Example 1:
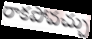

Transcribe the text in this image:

రాకపోవచ్చు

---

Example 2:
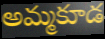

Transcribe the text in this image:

అమ్మకూడ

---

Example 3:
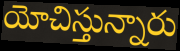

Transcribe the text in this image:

యోచిస్తున్నారు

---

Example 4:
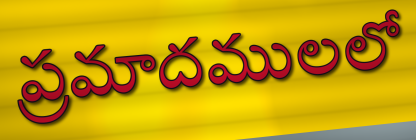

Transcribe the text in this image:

ప్రమాదములలో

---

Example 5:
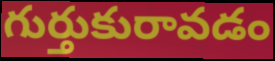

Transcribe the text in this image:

గుర్తుకురావడం